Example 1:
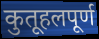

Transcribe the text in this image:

कुतूहलपूर्ण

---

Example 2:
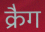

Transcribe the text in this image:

क्रैग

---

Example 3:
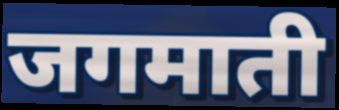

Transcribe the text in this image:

जगमाती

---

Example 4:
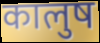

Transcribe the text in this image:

कालुष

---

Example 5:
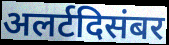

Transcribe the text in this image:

अलर्टदिसंबर